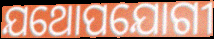
ଯଥୋପଯୋଗୀ